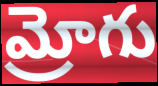
మ్రోగు